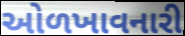
ઓળખાવનારી